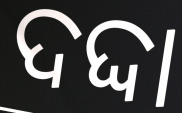
ଦଦ୍ଦା